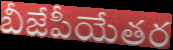
బీజేపీయేతర